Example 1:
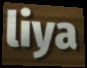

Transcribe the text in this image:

liya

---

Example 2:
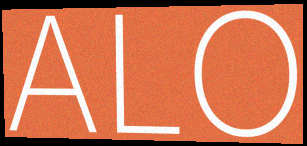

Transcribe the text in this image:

ALO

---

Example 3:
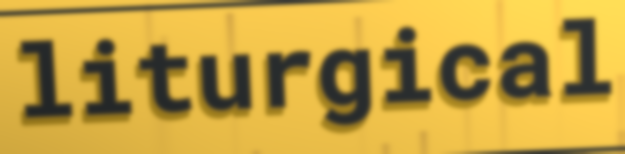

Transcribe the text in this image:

liturgical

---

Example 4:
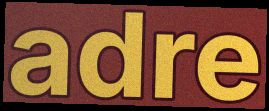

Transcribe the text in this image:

adre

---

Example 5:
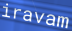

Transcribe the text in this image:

iravam